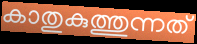
കാതുകുത്തുന്നത്